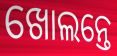
ଖୋଲନ୍ତେ